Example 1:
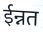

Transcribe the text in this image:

ईन्नत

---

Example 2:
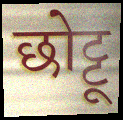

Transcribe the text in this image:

छोट्टू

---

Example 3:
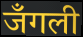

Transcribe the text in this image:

जँगली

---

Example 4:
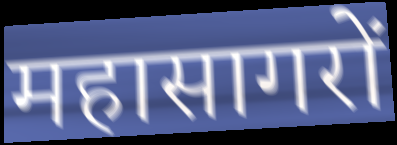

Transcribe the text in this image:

महासागरों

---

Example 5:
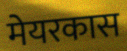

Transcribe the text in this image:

मेयरकास